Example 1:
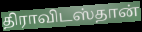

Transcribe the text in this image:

திராவிடஸ்தான்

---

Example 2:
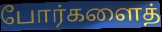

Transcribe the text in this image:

போர்களைத்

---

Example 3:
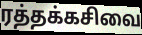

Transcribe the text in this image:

ரத்தக்கசிவை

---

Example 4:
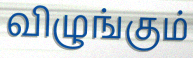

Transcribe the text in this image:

விழுங்கும்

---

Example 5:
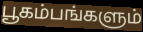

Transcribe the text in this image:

பூகம்பங்களும்